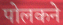
पोलकने